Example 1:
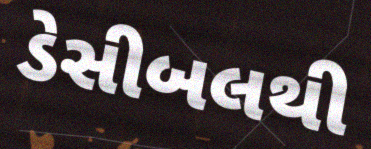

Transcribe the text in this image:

ડેસીબલથી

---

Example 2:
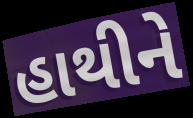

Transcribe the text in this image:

હાથીને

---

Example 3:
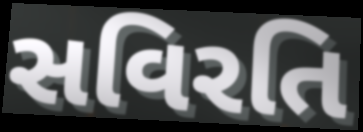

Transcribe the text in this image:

સવિરતિ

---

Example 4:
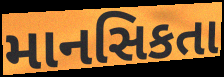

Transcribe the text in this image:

માનસિકતા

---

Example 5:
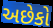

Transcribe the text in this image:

અછેકો